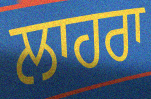
ਲਾਹਰਾ